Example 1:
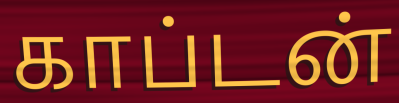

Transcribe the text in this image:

காப்டன்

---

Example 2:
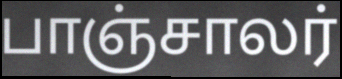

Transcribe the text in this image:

பாஞ்சாலர்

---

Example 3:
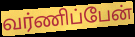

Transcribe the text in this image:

வர்ணிப்பேன்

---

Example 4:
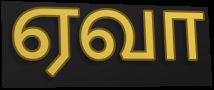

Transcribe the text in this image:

ஏவா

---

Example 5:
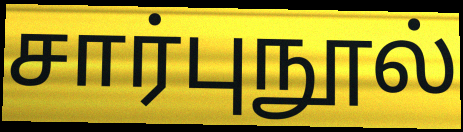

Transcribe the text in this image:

சார்புநூல்